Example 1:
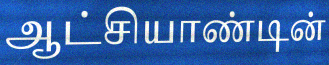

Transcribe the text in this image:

ஆட்சியாண்டின்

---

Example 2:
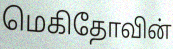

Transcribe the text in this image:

மெகிதோவின்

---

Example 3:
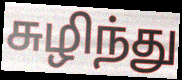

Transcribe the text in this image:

சுழிந்து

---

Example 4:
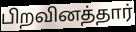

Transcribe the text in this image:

பிறவினத்தார்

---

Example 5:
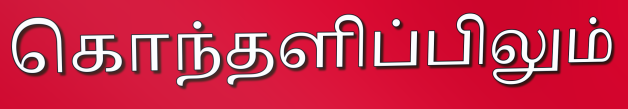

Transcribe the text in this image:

கொந்தளிப்பிலும்